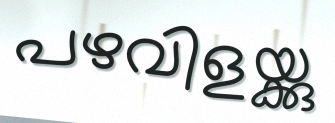
പഴവിളയ്ക്കു